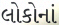
લોકોનાં